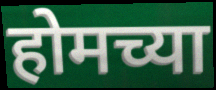
होमच्या